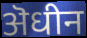
ऄधीन